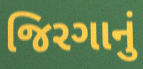
જિરગાનું